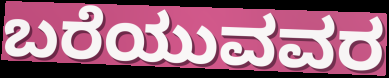
ಬರೆಯುವವರ